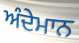
ਅੰਦੇਮਾਨ